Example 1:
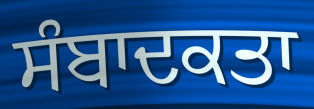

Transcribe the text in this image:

ਸੰਬਾਦਕਤਾ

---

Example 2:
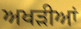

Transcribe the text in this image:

ਅਖੜੀਆਂ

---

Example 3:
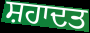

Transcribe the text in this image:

ਸ਼ਹਾਦਤ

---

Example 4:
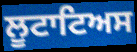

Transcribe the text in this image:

ਲੂਟਾਟਿਅਸ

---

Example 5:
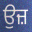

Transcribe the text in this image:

ਉਜ਼